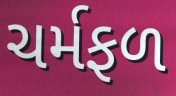
ચર્મફળ